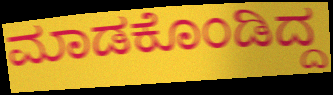
ಮಾಡಕೊಂಡಿದ್ದ